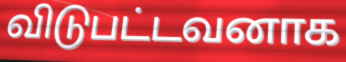
விடுபட்டவனாக